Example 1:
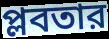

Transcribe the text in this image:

প্লবতার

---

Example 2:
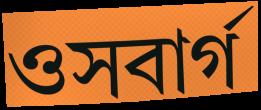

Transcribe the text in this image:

ওসবার্গ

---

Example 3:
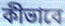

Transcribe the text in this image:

কীভাবে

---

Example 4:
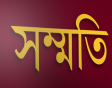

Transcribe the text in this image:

সম্মতি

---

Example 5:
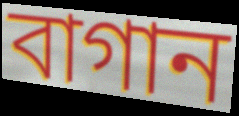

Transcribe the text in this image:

বাগান